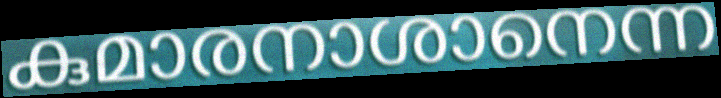
കുമാരനാശാനെന്ന